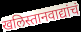
खलिस्तानवाद्यांचं